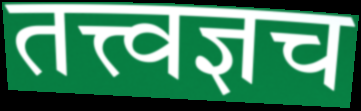
तत्त्वज्ञच